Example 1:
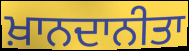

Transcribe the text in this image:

ਖ਼ਾਨਦਾਨੀਤਾ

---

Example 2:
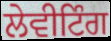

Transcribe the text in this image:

ਲੇਵੀਟਿੰਗ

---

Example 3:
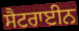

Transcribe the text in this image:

ਸੈਟਰਾਈਨ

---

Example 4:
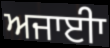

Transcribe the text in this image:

ਅਜਾਈਾ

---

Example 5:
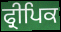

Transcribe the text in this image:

ਫ੍ਰੀਪਿਕ